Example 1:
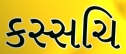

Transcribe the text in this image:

કસ્સચિ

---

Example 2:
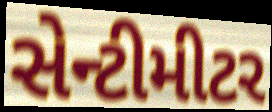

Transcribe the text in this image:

સેન્ટીમીટર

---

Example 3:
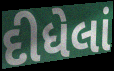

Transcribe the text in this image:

દીધેલાં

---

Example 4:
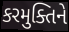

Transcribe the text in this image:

કરમુક્તિને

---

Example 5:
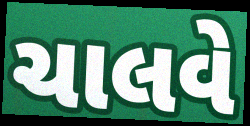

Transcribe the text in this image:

ચાલવે